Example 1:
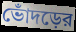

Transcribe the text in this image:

ভোঁদড়ের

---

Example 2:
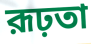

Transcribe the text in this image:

রূঢ়তা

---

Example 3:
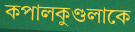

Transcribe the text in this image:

কপালকুণ্ডলাকে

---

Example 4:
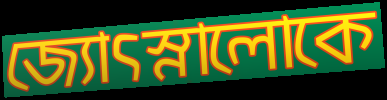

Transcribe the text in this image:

জ্যোৎস্নালোকে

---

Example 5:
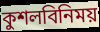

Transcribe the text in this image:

কুশলবিনিময়